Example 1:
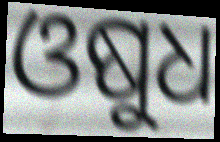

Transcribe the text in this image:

ଓଷୁଧ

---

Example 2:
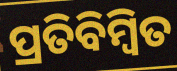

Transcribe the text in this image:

ପ୍ରତିବିମ୍ବିତ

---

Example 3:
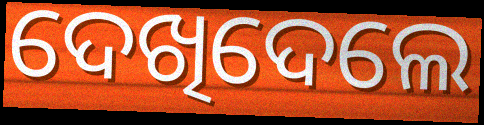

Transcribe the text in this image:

ଦେଖିଦେଲେ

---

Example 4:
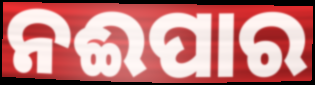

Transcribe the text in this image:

ନଈପାର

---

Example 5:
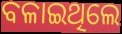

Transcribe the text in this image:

ବଳାଇଥିଲେ